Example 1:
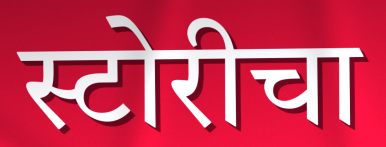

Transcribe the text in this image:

स्टोरीचा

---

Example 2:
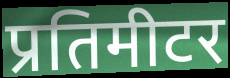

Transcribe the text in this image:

प्रतिमीटर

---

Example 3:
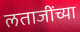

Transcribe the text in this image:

लताजींच्या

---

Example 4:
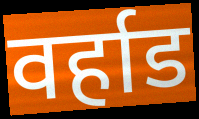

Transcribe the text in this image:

वर्हाड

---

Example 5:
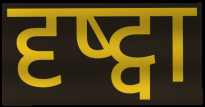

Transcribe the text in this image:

दृष्ट्वा